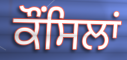
ਕੌਂਸਿਲਾਂ